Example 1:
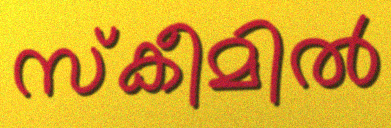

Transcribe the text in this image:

സ്കീമിൽ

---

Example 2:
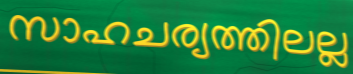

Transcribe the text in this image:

സാഹചര്യത്തിലല്ല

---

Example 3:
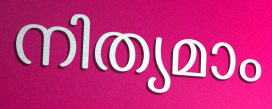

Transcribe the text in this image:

നിത്യമാം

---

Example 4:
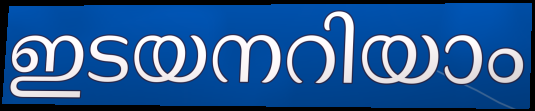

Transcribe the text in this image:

ഇടയനറിയാം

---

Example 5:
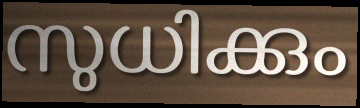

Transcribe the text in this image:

സുധിക്കും